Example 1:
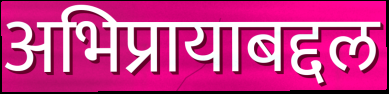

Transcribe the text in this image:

अभिप्रायाबद्दल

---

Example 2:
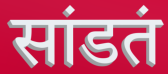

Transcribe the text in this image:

सांडतं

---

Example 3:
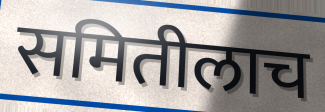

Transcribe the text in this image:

समितीलाच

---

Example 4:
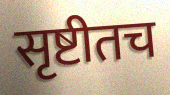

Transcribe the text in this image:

सृष्टीतच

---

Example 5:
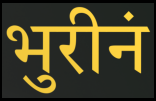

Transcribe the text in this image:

भुरीनं